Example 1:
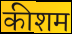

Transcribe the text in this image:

कीशम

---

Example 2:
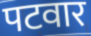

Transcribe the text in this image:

पटवार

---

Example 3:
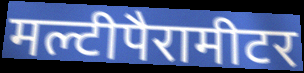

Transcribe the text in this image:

मल्टीपैरामीटर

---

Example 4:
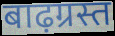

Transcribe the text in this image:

बाढ़ग्रस्त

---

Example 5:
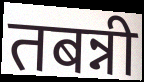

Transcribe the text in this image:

तबन्नी